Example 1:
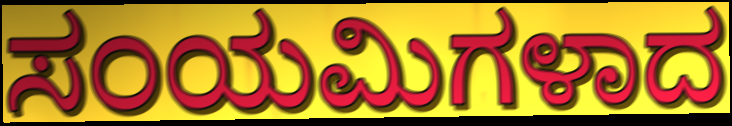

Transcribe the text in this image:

ಸಂಯಮಿಗಳಾದ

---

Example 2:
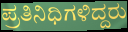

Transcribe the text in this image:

ಪ್ರತಿನಿಧಿಗಳಿದ್ದರು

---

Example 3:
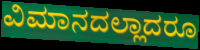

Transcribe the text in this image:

ವಿಮಾನದಲ್ಲಾದರೂ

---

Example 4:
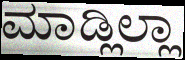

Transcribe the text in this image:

ಮಾಡ್ಲಿಲ್ಲಾ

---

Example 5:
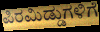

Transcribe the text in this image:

ಪಿರಮಿಡ್ಡುಗಳಿಗೆ